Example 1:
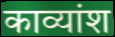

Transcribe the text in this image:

काव्यांश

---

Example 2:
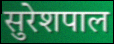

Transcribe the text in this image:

सुरेशपाल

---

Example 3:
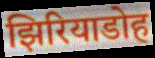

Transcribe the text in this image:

झिरियाडोह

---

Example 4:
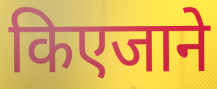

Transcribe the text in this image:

किएजाने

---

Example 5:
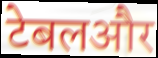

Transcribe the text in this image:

टेबलऔर